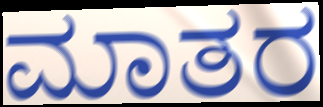
ಮಾತರ